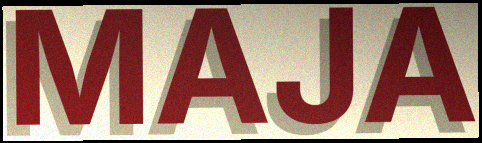
MAJA